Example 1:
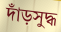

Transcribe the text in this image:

দাঁড়সুদ্ধ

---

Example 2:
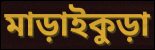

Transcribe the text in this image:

মাড়াইকুড়া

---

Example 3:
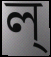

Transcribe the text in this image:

ল্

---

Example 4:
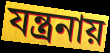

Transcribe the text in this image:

যন্ত্রনায়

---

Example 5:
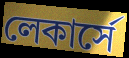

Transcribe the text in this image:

লেকার্সে